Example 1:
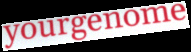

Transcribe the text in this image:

yourgenome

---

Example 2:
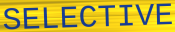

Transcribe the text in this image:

SELECTIVE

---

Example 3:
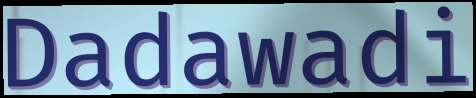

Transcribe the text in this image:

Dadawadi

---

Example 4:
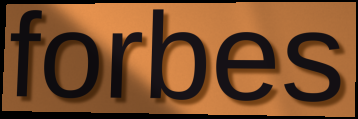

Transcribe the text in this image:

forbes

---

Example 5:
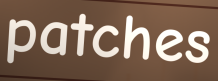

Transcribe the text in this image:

patches